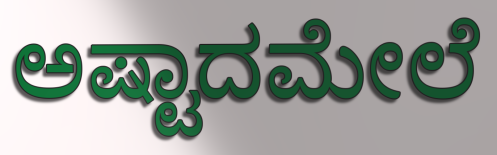
ಅಷ್ಟಾದಮೇಲೆ